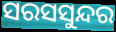
ସରସସୁନ୍ଦର